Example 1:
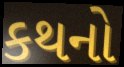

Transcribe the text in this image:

કથનો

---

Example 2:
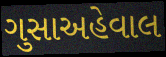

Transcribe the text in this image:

ગુસાઅહેવાલ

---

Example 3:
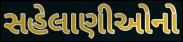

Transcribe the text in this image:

સહેલાણીઓનો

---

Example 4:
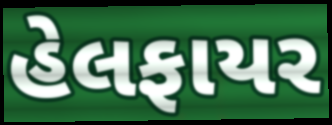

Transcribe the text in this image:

હેલફાયર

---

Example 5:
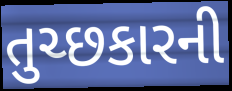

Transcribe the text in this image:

તુચ્છકારની